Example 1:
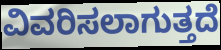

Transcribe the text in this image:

ವಿವರಿಸಲಾಗುತ್ತದೆ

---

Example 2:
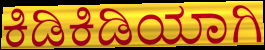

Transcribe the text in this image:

ಕಿಡಿಕಿಡಿಯಾಗಿ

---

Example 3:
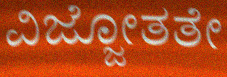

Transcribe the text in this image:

ವಿಜ್ಜೋತತೇ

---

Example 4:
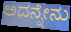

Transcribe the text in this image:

ಅದನ್ನೇನು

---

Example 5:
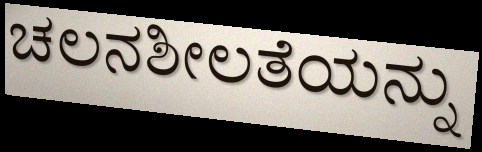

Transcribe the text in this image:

ಚಲನಶೀಲತೆಯನ್ನು